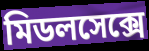
মিডলসেক্সে